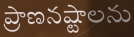
ప్రాణనష్టాలను